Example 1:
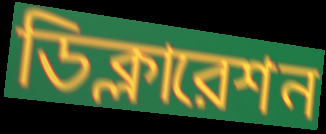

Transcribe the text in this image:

ডিক্লারেশন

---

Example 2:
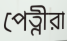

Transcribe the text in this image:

পেত্নীরা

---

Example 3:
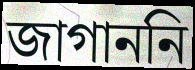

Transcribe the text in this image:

জাগাননি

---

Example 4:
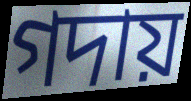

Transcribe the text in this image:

গদায়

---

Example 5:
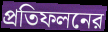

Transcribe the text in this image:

প্রতিফলনের